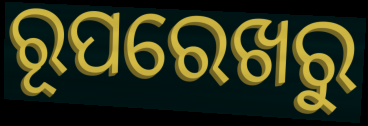
ରୂପରେଖରୁ